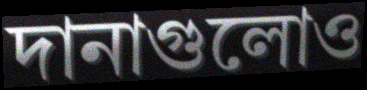
দানাগুলোও